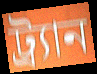
ট্র্যান